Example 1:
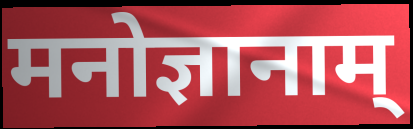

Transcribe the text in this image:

मनोज्ञानाम्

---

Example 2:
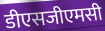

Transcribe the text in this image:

डीएसजीएमसी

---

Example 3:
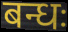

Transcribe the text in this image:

बन्धः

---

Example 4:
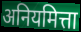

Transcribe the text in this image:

अनियमित्ता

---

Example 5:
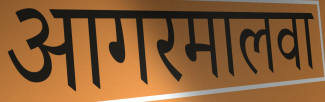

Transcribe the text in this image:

आगरमालवा